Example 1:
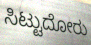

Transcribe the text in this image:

ಸಿಟ್ಟುದೋರು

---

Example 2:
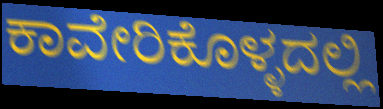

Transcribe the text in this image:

ಕಾವೇರಿಕೊಳ್ಳದಲ್ಲಿ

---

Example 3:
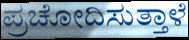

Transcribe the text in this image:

ಪ್ರಚೋದಿಸುತ್ತಾಳೆ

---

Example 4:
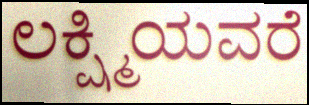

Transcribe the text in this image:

ಲಕ್ಷ್ಮಿಯವರೆ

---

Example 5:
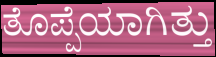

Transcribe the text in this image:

ತೊಪ್ಪೆಯಾಗಿತ್ತು